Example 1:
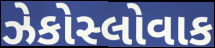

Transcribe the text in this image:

ઝેકોસ્લોવાક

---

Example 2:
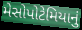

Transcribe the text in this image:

મેસોપોટેમિયાનું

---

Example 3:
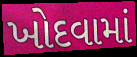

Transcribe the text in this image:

ખોદવામાં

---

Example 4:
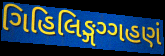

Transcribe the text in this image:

ગિહિલિઙ્ગગ્ગહણં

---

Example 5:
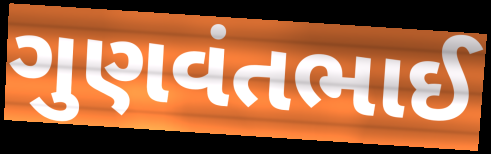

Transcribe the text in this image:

ગુણવંતભાઈ